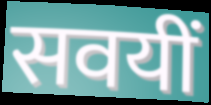
सवयीं